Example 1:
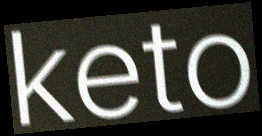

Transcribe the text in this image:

keto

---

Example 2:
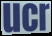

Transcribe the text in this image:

ucr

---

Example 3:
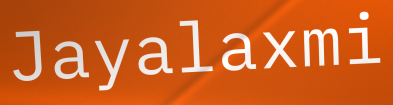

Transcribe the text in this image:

Jayalaxmi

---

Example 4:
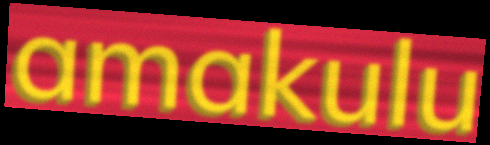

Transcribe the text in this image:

amakulu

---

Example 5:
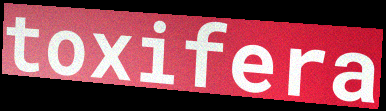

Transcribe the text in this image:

toxifera